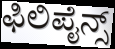
ಫಿಲಿಪೈನ್ಸ್